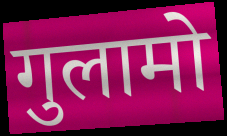
गुलामो